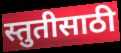
स्तुतीसाठी